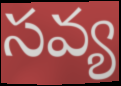
సవ్య